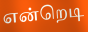
என்றெடி